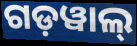
ଗଡ଼ୱାଲ୍